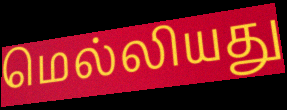
மெல்லியது